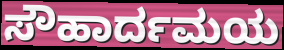
ಸೌಹಾರ್ದಮಯ